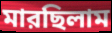
মারছিলাম